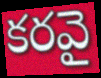
కరవై